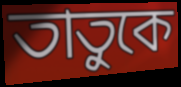
তাতুকে